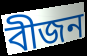
বীজন